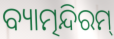
ବ୍ୟାତ୍ମନ୍ଦିରମ୍